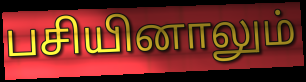
பசியினாலும்